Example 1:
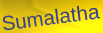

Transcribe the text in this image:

Sumalatha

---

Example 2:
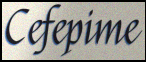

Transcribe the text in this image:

Cefepime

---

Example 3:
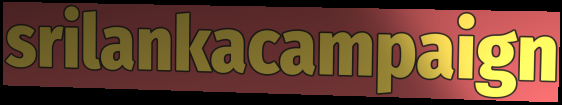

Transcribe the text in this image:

srilankacampaign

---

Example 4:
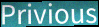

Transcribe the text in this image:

Privious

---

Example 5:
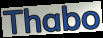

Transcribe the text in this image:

Thabo